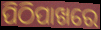
ପିଠିପାଖରେ